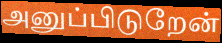
அனுப்பிடுறேன்